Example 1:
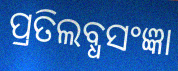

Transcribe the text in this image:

ପ୍ରତିଲବ୍ଧସଂଜ୍ଞା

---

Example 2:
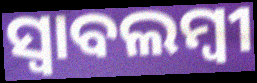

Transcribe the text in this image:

ସ୍ଵାବଲମ୍ଵୀ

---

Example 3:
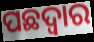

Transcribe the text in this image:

ପଛଦ୍ୱାର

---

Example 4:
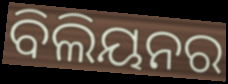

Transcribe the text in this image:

ବିଲିୟନର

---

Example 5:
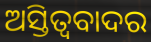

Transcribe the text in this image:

ଅସ୍ତିତ୍ବବାଦର